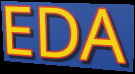
EDA